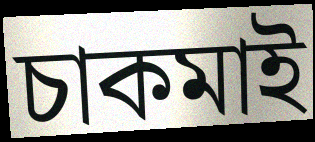
চাকমাই